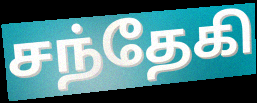
சந்தேகி